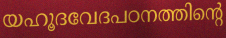
യഹൂദവേദപഠനത്തിന്റെ